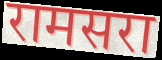
रामसरा